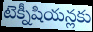
టెక్నీషియన్లకు